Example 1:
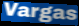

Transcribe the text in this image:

Vargas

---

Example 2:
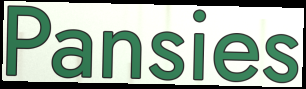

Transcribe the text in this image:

Pansies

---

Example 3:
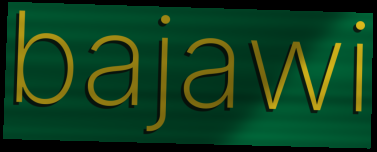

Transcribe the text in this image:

bajawi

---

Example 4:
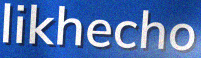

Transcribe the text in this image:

likhecho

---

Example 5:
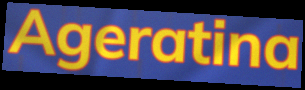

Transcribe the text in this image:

Ageratina